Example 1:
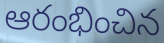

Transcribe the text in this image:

ఆరంభించిన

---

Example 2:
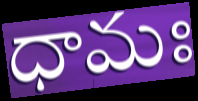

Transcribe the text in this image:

ధామః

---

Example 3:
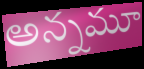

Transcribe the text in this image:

అన్నమూ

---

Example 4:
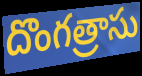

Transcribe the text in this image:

దొంగత్రాసు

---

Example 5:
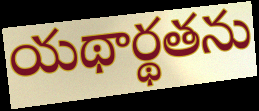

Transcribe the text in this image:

యథార్థతను